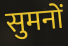
सुमनों